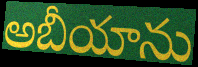
అబీయాను